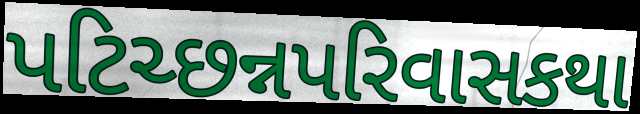
પટિચ્છન્નપરિવાસકથા